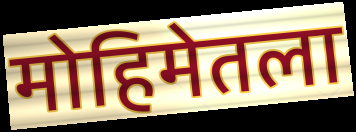
मोहिमेतला